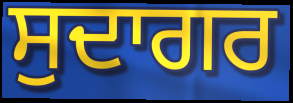
ਸੁਦਾਗਰ